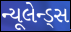
ન્યૂલેન્ડ્સ